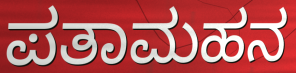
ಪತಾಮಹನ